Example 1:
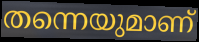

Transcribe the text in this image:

തന്നെയുമാണ്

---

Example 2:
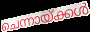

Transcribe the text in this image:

ചെന്നായ്ക്കൾ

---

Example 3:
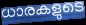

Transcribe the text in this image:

ധാരകളുടെ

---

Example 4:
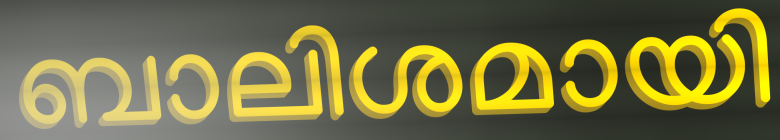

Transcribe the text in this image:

ബാലിശമായി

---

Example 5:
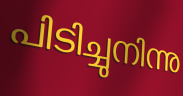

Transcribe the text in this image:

പിടിച്ചുനിന്നു